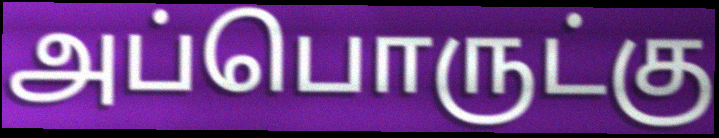
அப்பொருட்கு